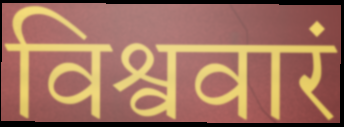
विश्ववारं